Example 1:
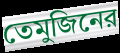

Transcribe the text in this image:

তেমুজিনের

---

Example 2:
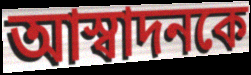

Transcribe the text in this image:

আস্বাদনকে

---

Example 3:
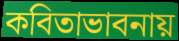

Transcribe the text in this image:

কবিতাভাবনায়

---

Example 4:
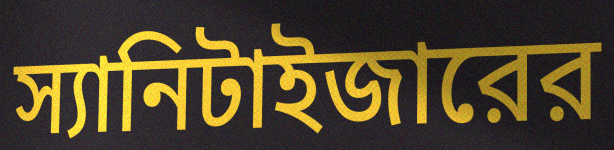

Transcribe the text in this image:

স্যানিটাইজারের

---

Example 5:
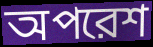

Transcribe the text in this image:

অপরেশ